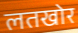
लतखोर